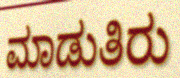
ಮಾಡುತಿರು